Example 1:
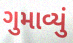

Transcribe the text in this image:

ગુમાવ્યું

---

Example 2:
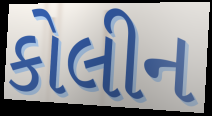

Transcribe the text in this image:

કોલીન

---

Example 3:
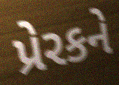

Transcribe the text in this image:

પ્રેરકને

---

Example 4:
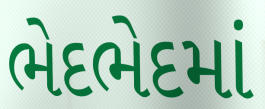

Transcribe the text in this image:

ભેદભેદમાં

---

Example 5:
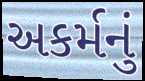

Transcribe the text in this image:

અકર્મનું